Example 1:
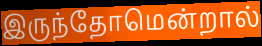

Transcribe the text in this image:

இருந்தோமென்றால்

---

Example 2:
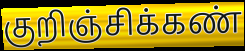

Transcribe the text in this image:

குறிஞ்சிக்கண்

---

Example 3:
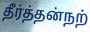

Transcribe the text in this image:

தீர்த்தன்நற்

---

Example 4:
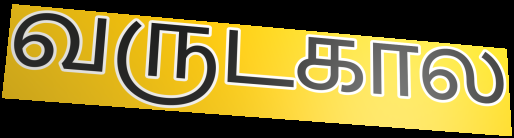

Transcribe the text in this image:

வருடகால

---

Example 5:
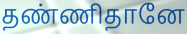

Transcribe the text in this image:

தண்ணிதானே